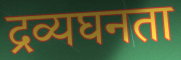
द्रव्यघनता